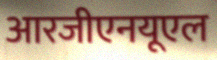
आरजीएनयूएल